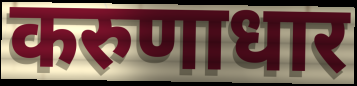
करुणाधार